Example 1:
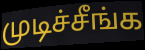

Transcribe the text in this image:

முடிச்சீங்க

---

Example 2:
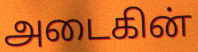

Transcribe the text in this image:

அடைகின்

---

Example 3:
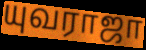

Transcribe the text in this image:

யுவராஜா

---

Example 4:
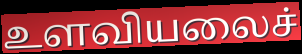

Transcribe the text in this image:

உளவியலைச்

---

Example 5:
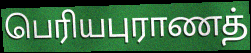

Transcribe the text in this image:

பெரியபுராணத்